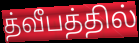
த்வீபத்தில்